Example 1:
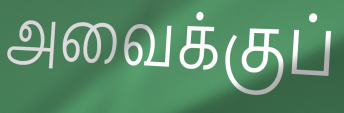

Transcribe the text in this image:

அவைக்குப்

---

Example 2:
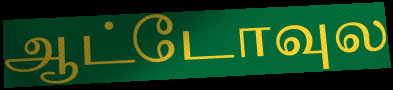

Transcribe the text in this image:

ஆட்டோவுல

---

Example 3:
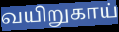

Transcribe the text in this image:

வயிறுகாய்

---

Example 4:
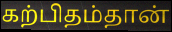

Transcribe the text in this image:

கற்பிதம்தான்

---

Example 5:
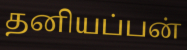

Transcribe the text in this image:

தனியப்பன்